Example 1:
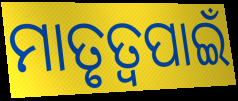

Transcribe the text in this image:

ମାତୃତ୍ୱପାଇଁ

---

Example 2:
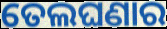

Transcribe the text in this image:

ତେଲଘଣାର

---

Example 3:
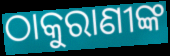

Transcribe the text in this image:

ଠାକୁରାଣୀଙ୍କ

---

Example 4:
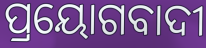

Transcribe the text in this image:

ପ୍ରୟୋଗବାଦୀ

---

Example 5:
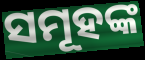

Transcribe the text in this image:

ସମୂହଙ୍କ